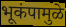
भूकंपामुळे